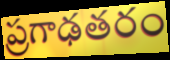
ప్రగాఢతరం